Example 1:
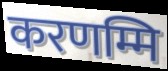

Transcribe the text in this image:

करणम्मि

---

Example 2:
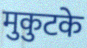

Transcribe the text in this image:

मुकुटके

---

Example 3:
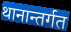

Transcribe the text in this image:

थानान्तर्गत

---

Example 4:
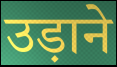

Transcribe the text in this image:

उड़ाने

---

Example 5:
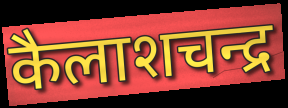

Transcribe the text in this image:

कैलाशचन्द्र